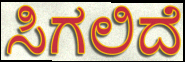
ಸಿಗಲಿದೆ